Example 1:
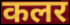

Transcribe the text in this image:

कलर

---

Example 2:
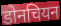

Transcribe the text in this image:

डोनचियन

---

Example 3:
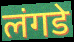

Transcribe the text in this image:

लंगडे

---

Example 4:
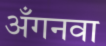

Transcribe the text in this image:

अँगनवा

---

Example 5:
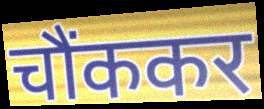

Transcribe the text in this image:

चौंककर